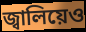
জ্বালিয়েও